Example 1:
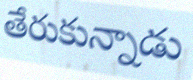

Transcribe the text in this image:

తేరుకున్నాడు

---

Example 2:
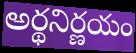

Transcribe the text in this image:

అర్థనిర్ణయం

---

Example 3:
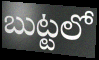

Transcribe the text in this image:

బుట్టలో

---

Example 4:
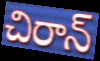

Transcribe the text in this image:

చిరాన్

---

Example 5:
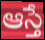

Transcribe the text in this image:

ఆస్తే